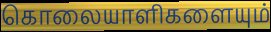
கொலையாளிகளையும்